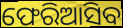
ଫେରିଆସିବ